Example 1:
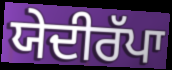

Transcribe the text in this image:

ਯੇਦੀਰੱਪਾ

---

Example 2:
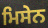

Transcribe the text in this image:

ਮਿਸੇਨ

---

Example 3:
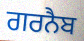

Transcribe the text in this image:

ਗਰਨੈਬ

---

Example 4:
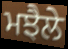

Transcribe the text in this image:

ਮਝੈਲੇ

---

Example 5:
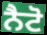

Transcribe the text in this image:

ਨੈਟੋ